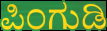
ಪಿಂಗುಡಿ